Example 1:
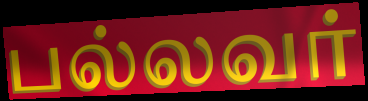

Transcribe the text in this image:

பல்லவர்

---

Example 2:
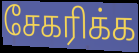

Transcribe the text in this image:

சேகரிக்க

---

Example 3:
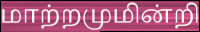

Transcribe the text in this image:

மாற்றமுமின்றி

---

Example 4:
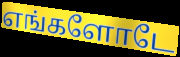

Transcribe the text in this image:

எங்களோடே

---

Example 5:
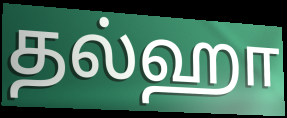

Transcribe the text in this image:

தல்ஹா